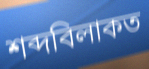
শব্দবিলাকত